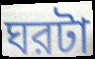
ঘরটা